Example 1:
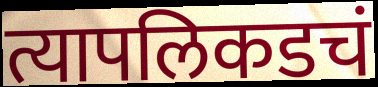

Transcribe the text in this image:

त्यापलिकडचं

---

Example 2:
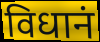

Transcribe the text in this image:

विधानं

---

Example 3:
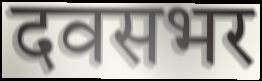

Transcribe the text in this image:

दवसभर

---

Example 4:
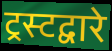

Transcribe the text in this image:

ट्रस्टद्वारे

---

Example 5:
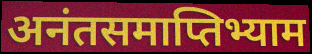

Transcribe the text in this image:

अनंतसमाप्तिभ्याम